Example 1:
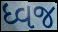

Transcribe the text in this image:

ધ્વજ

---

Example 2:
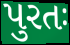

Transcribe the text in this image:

પુરતઃ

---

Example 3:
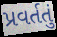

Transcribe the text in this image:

પ્રવર્તતું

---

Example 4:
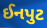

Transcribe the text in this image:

ઈનપુટ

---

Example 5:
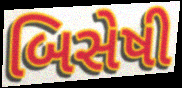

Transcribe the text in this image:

બિસેષી